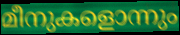
മീനുകളൊന്നും